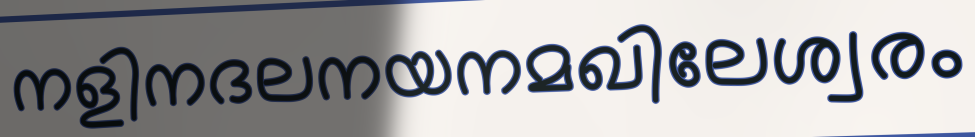
നളിനദലനയനമഖിലേശ്വരം